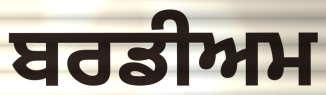
ਬਰਡੀਅਮ